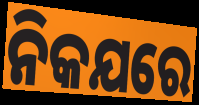
ନିକଯରେ